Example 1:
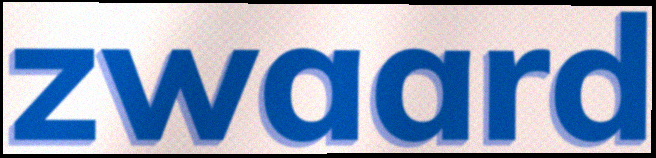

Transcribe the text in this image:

zwaard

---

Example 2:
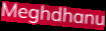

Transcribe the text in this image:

Meghdhanu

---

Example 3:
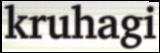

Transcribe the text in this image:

kruhagi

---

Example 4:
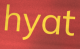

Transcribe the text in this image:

hyat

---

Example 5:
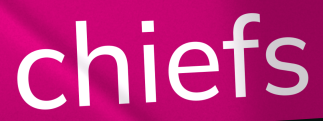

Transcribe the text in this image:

chiefs